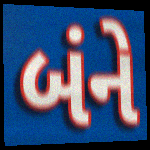
બંને